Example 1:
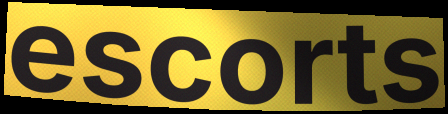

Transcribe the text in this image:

escorts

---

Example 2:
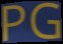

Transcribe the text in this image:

PG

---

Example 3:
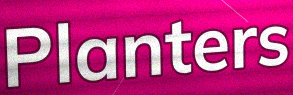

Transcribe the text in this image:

Planters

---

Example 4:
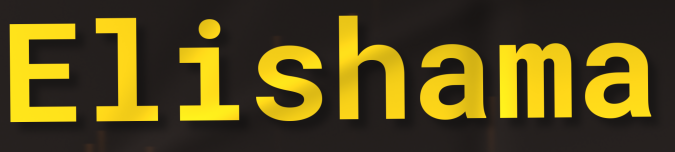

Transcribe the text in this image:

Elishama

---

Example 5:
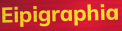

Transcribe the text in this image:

Eipigraphia